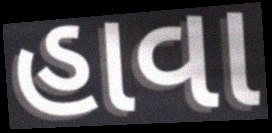
હાવા